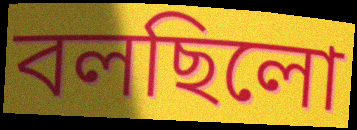
বলছিলো